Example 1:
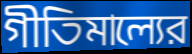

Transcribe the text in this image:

গীতিমাল্যের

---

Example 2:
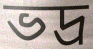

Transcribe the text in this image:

ভদ্র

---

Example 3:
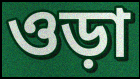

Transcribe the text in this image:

ওড়া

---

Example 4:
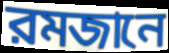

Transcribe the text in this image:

রমজানে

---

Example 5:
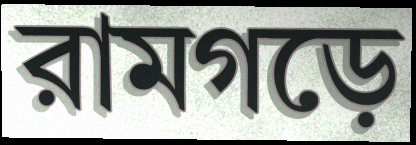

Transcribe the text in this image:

রামগড়ে